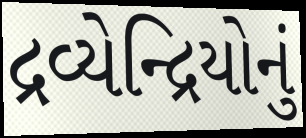
દ્રવ્યેન્દ્રિયોનું